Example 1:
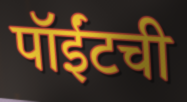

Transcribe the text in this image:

पॉईंटची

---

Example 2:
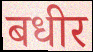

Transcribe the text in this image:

बधीर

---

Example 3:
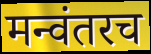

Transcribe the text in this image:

मन्वंतरच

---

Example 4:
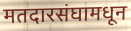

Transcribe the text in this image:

मतदारसंघामधून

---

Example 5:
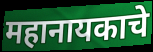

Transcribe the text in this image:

महानायकाचे